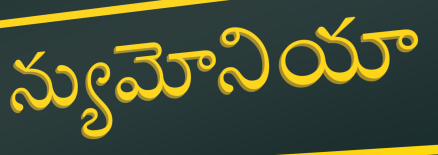
న్యుమోనియా